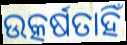
ଉତ୍କର୍ଷତାହିଁ